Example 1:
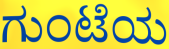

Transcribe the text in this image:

ಗುಂಟೆಯ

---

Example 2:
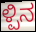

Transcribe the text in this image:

ಳ್ಪಿನ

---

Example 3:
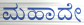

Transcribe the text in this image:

ಮಹಾದೇ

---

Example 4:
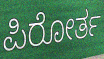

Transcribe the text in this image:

ಪಿರೋರ್ತ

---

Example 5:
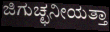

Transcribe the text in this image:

ಜಿಗುಚ್ಛನೀಯತ್ತಾ